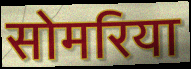
सोमरिया